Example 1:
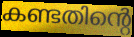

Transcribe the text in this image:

കണ്ടതിന്റെ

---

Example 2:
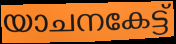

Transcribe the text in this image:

യാചനകേട്ട്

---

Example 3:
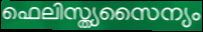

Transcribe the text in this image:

ഫെലിസ്ത്യസൈന്യം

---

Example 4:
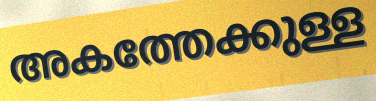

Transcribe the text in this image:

അകത്തേക്കുള്ള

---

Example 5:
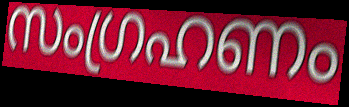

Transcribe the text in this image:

സംഗ്രഹണം